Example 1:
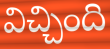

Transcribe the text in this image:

విచ్చింది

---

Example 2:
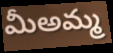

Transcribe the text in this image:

మీఅమ్మ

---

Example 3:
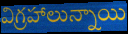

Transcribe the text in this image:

విగ్రహాలున్నాయి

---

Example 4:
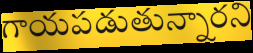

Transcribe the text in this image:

గాయపడుతున్నారని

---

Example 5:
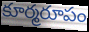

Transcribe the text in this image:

కూర్మరూపం